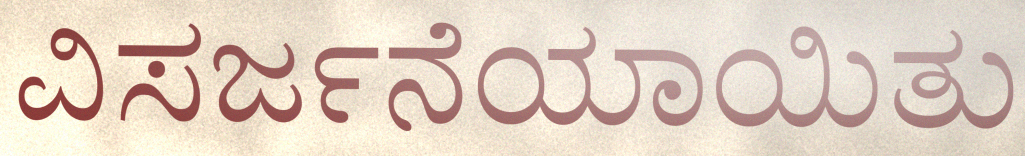
ವಿಸರ್ಜನೆಯಾಯಿತು